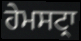
ਹੇਮਸਟ੍ਰਾ